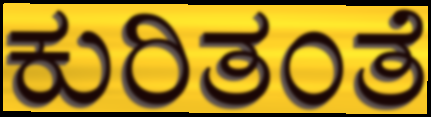
ಕುರಿತಂತೆ